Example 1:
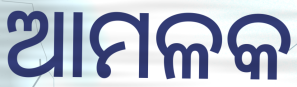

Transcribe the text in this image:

ଆମଳକ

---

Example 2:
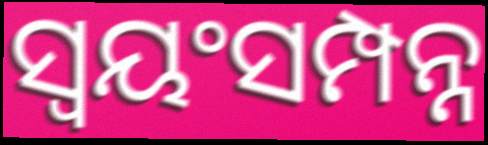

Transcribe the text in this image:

ସ୍ବୟଂସମ୍ପନ୍ନ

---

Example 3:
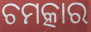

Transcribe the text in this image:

ଚମତ୍କାର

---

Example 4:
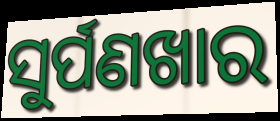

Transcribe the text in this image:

ସୁର୍ପଣଖାର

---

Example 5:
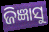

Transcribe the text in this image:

ଜିଜ୍ଞାସୁ